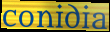
conidia